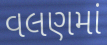
વલણમાં